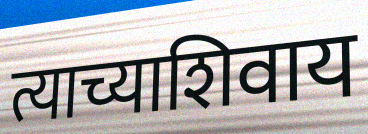
त्याच्याशिवाय